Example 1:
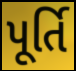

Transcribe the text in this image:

પૂર્તિ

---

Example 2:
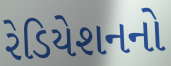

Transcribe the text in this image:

રેડિયેશનનો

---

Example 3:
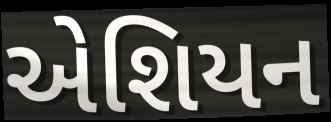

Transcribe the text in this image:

એશિયન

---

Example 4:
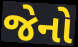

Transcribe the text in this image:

જેનો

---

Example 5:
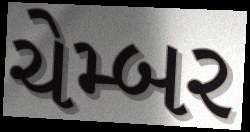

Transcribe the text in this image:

ચેમ્બર